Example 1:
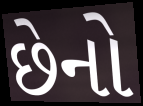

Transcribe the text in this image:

છેનો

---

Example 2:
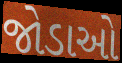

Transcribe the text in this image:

જોડાઓ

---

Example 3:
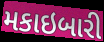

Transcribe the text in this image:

મકાઇબારી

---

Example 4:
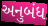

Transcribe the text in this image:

અનુબંધ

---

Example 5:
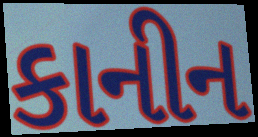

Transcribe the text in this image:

કાનીન